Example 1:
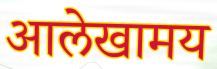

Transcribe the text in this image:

आलेखामय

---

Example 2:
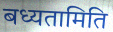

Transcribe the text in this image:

बध्यतामिति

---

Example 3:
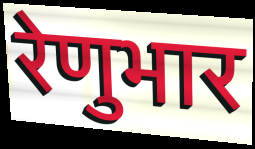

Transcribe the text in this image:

रेणुभार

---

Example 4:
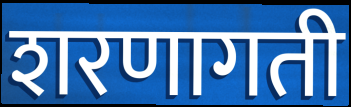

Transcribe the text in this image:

शरणागती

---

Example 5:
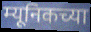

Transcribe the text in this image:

म्यूनिकच्या